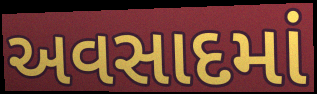
અવસાદમાં